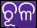
ଚୂଳ